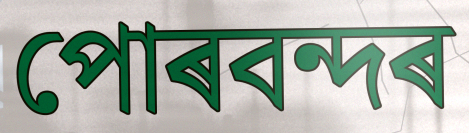
পোৰবন্দৰ